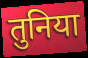
तुनिया